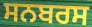
ਸਨਬਰਸ